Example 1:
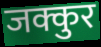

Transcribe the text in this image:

जक्कुर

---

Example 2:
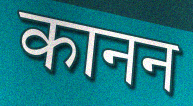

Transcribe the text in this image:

कानन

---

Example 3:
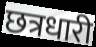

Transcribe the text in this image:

छत्रधारी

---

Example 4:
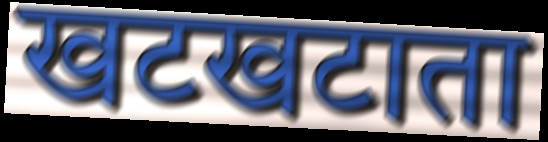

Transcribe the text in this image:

खटखटाता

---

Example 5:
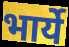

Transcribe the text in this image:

भार्ये